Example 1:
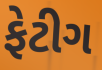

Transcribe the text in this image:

ફેટીગ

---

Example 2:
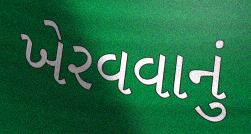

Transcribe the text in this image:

ખેરવવાનું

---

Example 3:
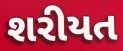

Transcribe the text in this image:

શરીયત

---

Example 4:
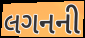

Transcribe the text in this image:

લગનની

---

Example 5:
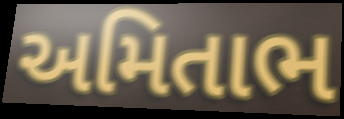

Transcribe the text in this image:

અમિતાભ